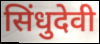
सिंधुदेवी